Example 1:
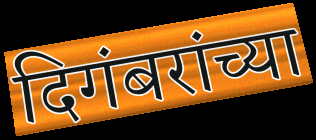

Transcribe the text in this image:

दिगंबरांच्या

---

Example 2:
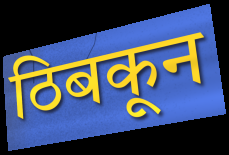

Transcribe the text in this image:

ठिबकून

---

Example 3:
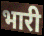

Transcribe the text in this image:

भारी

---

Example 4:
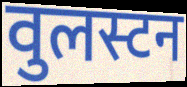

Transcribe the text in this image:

वुलस्टन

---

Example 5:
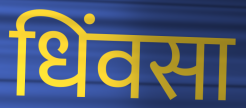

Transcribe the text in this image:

धिंवसा